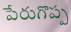
పేరుగొప్ప